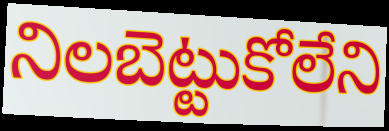
నిలబెట్టుకోలేని